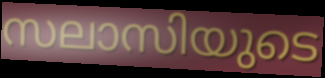
സലാസിയുടെ